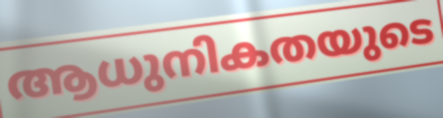
ആധുനികതയുടെ